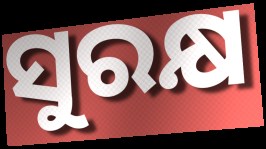
ସୁରକ୍ଷ